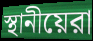
স্থানীয়েরা